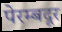
पेरम्बदूर